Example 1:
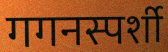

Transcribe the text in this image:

गगनस्पर्शी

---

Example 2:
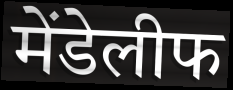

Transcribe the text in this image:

मेंडेलीफ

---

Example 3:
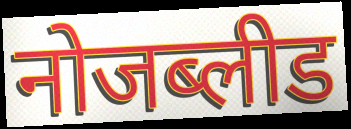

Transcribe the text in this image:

नोजब्लीड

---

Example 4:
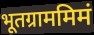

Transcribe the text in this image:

भूतग्राममिमं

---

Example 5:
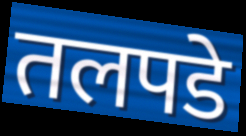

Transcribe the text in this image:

तलपडे